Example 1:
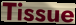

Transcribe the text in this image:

Tissue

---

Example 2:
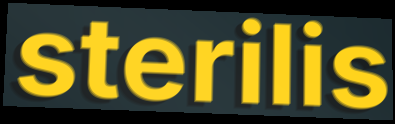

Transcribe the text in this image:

sterilis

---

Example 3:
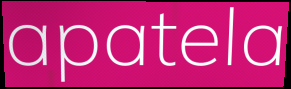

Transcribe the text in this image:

apatela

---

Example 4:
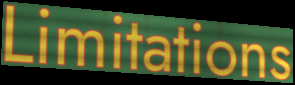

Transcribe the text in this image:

Limitations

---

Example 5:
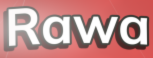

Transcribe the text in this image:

Rawa